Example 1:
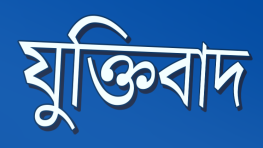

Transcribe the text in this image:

যুক্তিবাদ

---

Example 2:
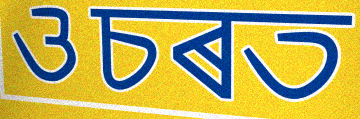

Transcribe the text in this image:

ওচৰত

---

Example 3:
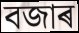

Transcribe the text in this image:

বজাৰ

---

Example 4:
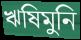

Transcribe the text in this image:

ঋষিমুনি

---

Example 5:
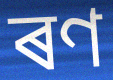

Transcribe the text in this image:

ৰণ